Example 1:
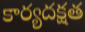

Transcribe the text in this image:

కార్యదక్షత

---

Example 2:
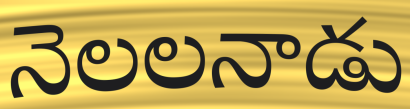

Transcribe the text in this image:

నెలలనాడు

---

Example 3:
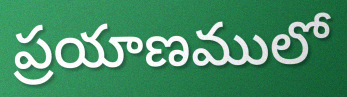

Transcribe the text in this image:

ప్రయాణములో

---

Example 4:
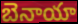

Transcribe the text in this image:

బెనాయా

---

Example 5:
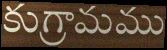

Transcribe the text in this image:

కుగ్రామము